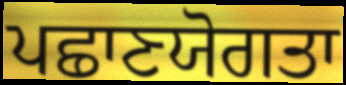
ਪਛਾਣਯੋਗਤਾ